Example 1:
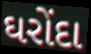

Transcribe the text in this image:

ઘરોંદા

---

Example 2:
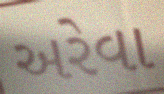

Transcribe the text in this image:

અરેવા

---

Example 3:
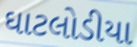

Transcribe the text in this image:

ઘાટલોડીયા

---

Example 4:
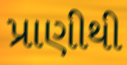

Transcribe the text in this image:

પ્રાણીથી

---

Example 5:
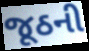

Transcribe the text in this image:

જૂઠની